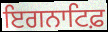
ਇਗਨਾਟਿਫ਼